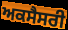
ਅਕਸੈਸਰੀ